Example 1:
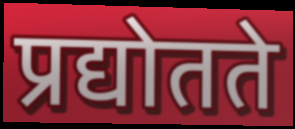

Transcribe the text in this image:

प्रद्योतते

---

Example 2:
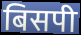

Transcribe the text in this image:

बिसपी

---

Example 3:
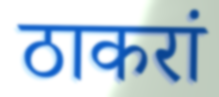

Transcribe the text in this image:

ठाकरां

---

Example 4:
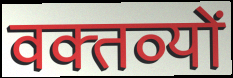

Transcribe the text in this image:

वक्‍तव्‍यों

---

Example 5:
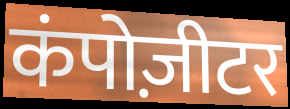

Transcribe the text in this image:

कंपोज़ीटर